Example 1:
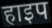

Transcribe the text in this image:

हाइप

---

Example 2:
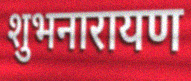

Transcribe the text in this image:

शुभनारायण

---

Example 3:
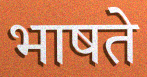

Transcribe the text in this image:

भाषते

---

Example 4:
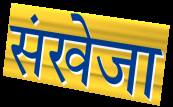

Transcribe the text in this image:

संखेजा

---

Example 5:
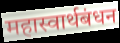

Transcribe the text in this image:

महास्वार्थबंधन